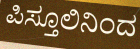
ಪಿಸ್ತೂಲಿನಿಂದ